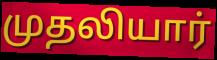
முதலியார்